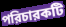
পরিচারকটি